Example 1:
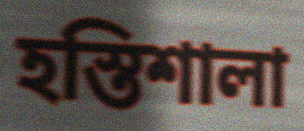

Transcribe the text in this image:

হস্তিশালা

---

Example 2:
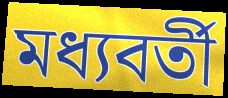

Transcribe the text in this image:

মধ্যবর্তী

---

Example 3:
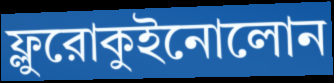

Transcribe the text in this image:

ফ্লুরোকুইনোলোন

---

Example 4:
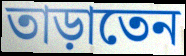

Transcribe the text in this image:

তাড়াতেন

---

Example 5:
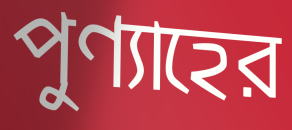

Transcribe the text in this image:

পুণ্যাহের